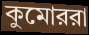
কুমোররা